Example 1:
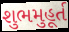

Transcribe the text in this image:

શુભમુહૂર્ત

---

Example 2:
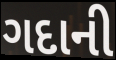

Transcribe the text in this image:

ગદાની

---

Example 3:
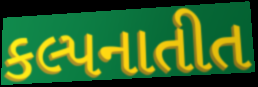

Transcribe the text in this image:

કલ્પનાતીત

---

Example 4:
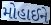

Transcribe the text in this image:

મોહાઈને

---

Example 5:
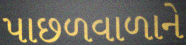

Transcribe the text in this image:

પાછળવાળાને